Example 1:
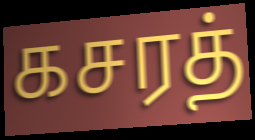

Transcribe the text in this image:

கசரத்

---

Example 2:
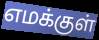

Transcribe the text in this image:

எமக்குள்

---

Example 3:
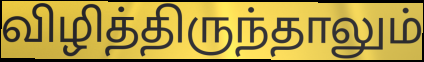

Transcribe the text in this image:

விழித்திருந்தாலும்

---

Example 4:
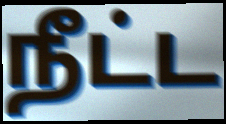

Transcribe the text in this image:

நீட்ட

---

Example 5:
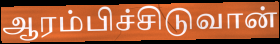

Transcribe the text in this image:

ஆரம்பிச்சிடுவான்